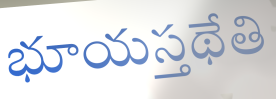
భూయస్తథేతి